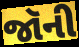
જૉની